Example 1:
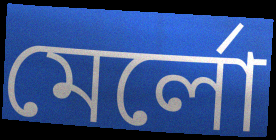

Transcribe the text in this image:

মের্লো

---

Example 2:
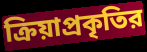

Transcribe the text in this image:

ক্রিয়াপ্রকৃতির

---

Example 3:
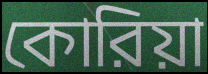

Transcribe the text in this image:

কোরিয়া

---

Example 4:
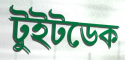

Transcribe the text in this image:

টুইটডেক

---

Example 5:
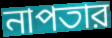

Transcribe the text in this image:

নাপতার